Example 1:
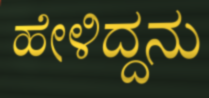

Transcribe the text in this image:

ಹೇಳಿದ್ದನು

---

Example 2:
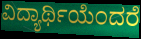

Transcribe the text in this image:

ವಿದ್ಯಾರ್ಥಿಯೆಂದರೆ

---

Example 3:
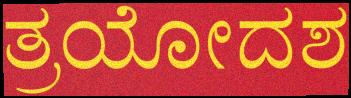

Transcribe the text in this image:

ತ್ರಯೋದಶ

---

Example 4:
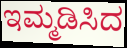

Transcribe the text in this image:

ಇಮ್ಮಡಿಸಿದ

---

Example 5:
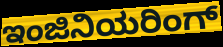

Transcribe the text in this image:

ಇಂಜಿನಿಯರಿಂಗ್